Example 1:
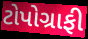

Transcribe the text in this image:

ટોપોગ્રાફી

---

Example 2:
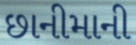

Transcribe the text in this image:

છાનીમાની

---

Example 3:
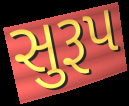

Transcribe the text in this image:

સુરૂપ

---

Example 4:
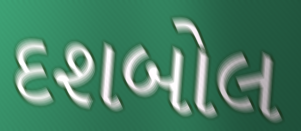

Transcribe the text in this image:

દશબોલ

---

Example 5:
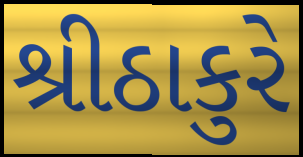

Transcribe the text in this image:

શ્રીઠાકુરે